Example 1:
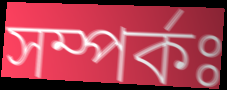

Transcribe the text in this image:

সম্পৰ্কঃ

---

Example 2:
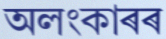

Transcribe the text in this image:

অলংকাৰৰ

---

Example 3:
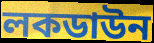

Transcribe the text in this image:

লকডাউন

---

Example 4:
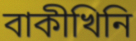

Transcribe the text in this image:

বাকীখিনি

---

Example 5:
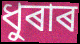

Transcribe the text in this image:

ধুৰাৰ